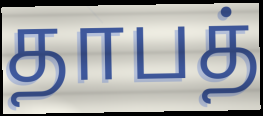
தாபத்